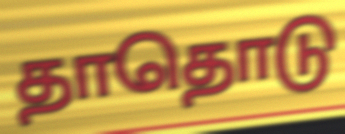
தாதொடு